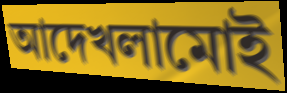
আদেখলামোই